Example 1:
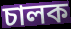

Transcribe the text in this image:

চালক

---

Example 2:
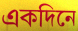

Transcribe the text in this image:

একদিনে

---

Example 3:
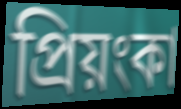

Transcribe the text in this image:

প্ৰিয়ংকা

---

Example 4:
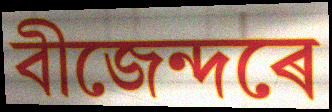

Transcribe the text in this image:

বীজেন্দৰে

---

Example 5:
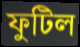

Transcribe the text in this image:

ফুটিল